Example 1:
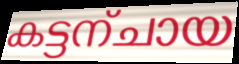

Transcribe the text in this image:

കട്ടന്ചായ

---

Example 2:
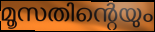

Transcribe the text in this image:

മൂസതിന്റെയും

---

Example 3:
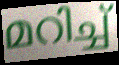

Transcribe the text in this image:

മറിച്ച്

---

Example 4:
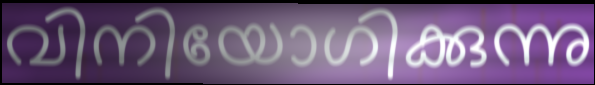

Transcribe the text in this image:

വിനിയോഗിക്കുന്നു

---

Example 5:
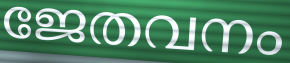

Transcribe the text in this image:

ജേതവനം